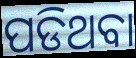
ପଡିଥବା